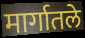
मार्गातले